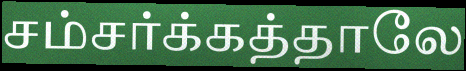
சம்சர்க்கத்தாலே